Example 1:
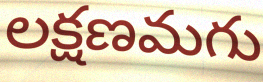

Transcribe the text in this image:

లక్షణమగు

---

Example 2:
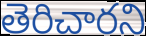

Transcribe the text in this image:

తెరిచారని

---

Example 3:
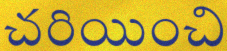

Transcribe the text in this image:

చరియించి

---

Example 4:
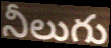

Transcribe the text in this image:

నీలుగు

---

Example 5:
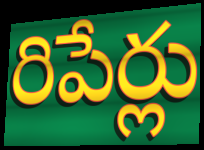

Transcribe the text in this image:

రిపేర్లు